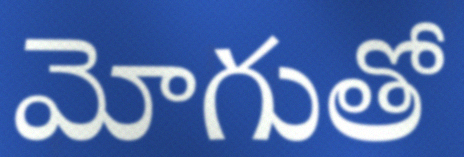
మోగుతో